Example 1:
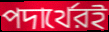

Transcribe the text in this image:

পদার্থেরই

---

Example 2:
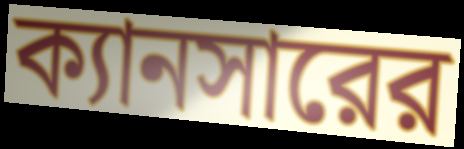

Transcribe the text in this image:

ক্যানসারের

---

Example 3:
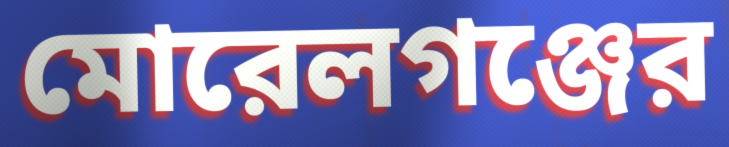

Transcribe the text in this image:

মোরেলগঞ্জের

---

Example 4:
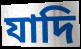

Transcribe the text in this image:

যাদি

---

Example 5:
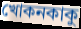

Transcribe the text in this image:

খোকনকাকু